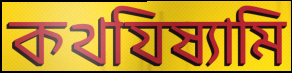
কথযিষ্যামি